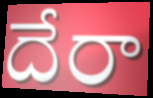
దేరా